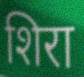
शिरा